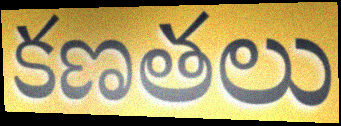
కణతలు